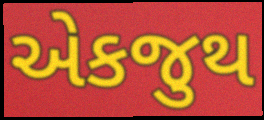
એકજુથ